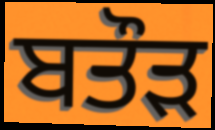
ਬਤੌੜ